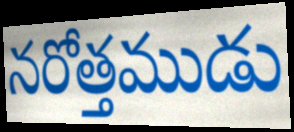
నరోత్తముడు